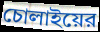
চোলাইয়ের